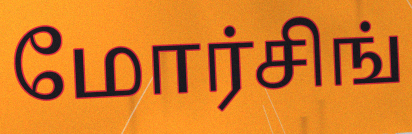
மோர்சிங்